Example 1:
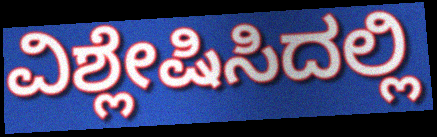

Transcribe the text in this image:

ವಿಶ್ಲೇಷಿಸಿದಲ್ಲಿ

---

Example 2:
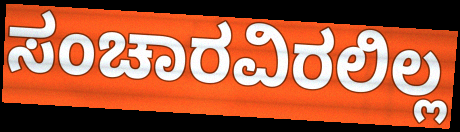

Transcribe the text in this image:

ಸಂಚಾರವಿರಲಿಲ್ಲ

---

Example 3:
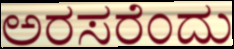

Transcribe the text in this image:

ಅರಸರೆಂದು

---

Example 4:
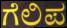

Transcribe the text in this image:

ಗೆಲಿಪ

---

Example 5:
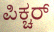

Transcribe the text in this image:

ಪಿಕ್ಚರ್